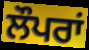
ਲੌਪਰਾਂ